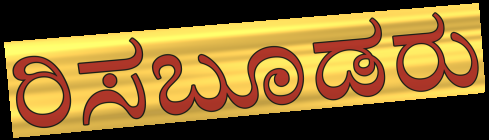
ರಿಸಬೂಡರು